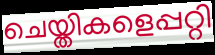
ചെയ്തികളെപ്പറ്റി